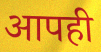
आपही